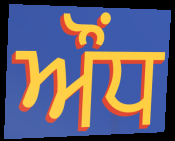
ਔਂਧ